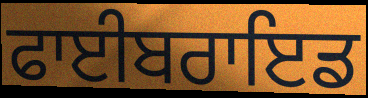
ਫਾਈਬਰਾਇਡ